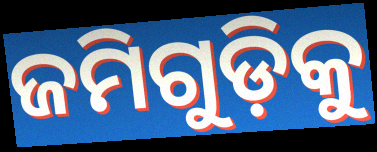
ଜମିଗୁଡ଼ିକୁ